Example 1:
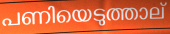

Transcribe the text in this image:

പണിയെടുത്താല്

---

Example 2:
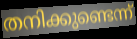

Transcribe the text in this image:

തനിക്കുണ്ടെന്ന്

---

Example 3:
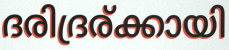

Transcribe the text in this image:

ദരിദ്രര്ക്കായി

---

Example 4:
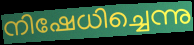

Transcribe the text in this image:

നിഷേധിച്ചെന്നു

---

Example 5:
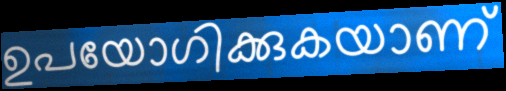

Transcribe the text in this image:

ഉപയോഗിക്കുകയാണ്